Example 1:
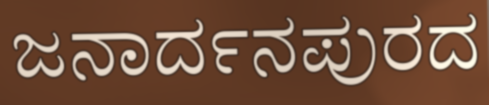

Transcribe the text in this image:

ಜನಾರ್ದನಪುರದ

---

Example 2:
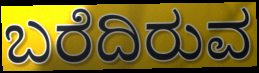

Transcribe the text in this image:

ಬರೆದಿರುವ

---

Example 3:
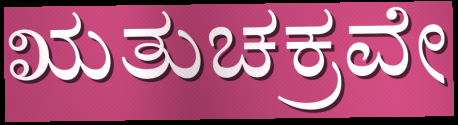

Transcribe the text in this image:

ಋತುಚಕ್ರವೇ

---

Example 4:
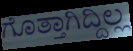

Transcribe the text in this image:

ಗೊತ್ತಾಗಿದ್ದಿಲ್ಲ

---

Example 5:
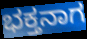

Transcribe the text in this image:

ಭಕ್ತನಾಗ